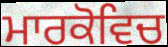
ਮਾਰਕੋਵਿਚ